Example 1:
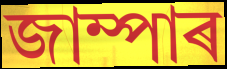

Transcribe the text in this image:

জাম্পাৰ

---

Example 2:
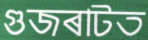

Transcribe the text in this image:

গুজৰাটত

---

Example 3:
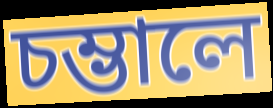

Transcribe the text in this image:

চম্ভালে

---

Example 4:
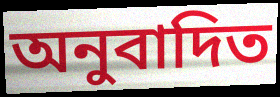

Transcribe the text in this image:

অনুবাদিত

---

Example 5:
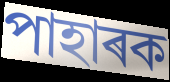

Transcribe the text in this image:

পাহাৰক